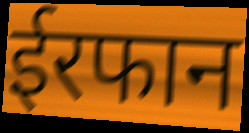
ईरफान